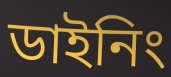
ডাইনিং